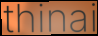
thinai